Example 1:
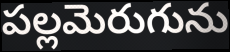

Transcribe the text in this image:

పల్లమెరుగును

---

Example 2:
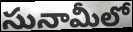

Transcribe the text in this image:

సునామీలో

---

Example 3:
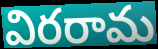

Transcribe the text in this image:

విరరామ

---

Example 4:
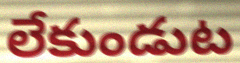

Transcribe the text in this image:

లేకుండుట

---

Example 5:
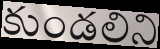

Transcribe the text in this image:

కుండలిని